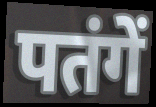
पतंगें